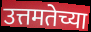
उत्तमतेच्या